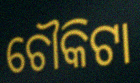
ଚୌକିଟା